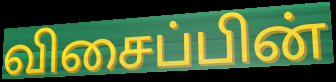
விசைப்பின்